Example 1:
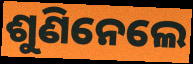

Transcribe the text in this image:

ଶୁଣିନେଲେ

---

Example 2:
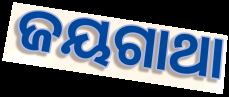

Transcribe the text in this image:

ଜୟଗାଥା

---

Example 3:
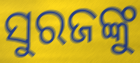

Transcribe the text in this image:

ସୁରଜଙ୍କୁ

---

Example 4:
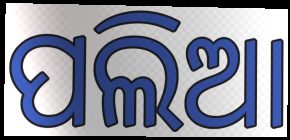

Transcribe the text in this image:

ପଲିଆ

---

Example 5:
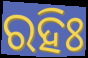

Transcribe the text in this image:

ରହିଃ